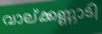
വാല്ക്കണ്ണാടി